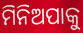
ମିନିଅପାକୁ